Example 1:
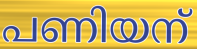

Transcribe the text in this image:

പണിയന്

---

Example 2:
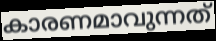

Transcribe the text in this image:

കാരണമാവുന്നത്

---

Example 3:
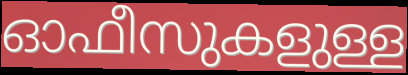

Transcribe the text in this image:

ഓഫീസുകളുള്ള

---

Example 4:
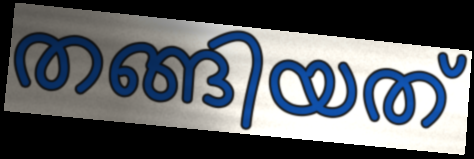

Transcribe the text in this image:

തങ്ങിയത്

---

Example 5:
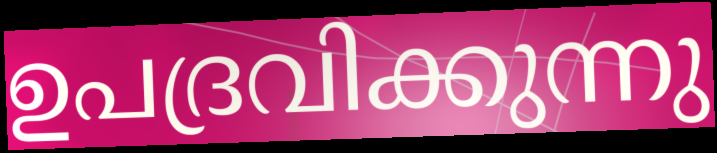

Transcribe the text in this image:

ഉപദ്രവിക്കുന്നു